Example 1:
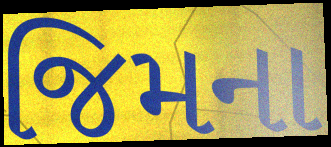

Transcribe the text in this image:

જિમના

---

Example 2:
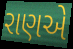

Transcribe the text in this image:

રાણએ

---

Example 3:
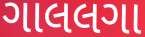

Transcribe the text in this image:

ગાલલગા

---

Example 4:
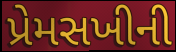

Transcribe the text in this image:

પ્રેમસખીની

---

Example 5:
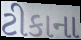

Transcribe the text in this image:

ટીકાના